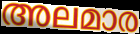
അലമാര